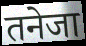
तनेजा